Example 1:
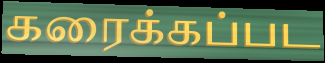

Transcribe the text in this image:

கரைக்கப்பட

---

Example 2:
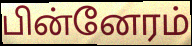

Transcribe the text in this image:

பின்னேரம்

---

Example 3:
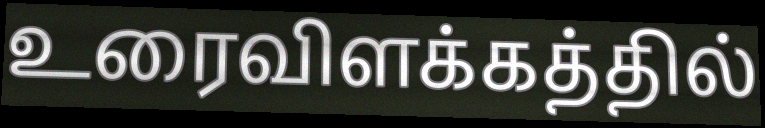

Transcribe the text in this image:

உரைவிளக்கத்தில்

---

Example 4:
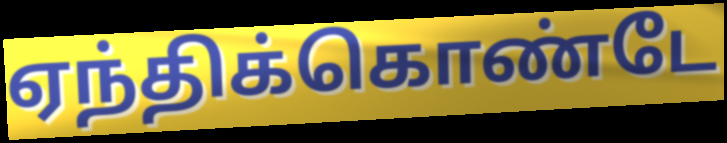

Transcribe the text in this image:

ஏந்திக்கொண்டே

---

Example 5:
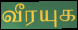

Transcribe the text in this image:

வீரயுக